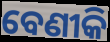
ବେଣୀକି